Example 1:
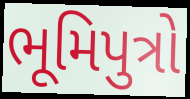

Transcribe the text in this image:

ભૂમિપુત્રો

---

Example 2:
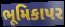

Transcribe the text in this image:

ભૂમિકાપર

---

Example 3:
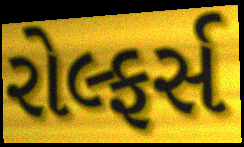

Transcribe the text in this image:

રોલ્ફર્સ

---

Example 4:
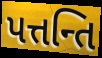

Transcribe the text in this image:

પત્તન્તિ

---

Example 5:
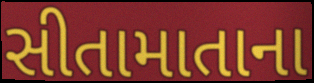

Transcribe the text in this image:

સીતામાતાના